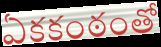
ఏకకంఠంతో